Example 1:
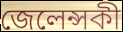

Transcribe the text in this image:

জেলেন্সকী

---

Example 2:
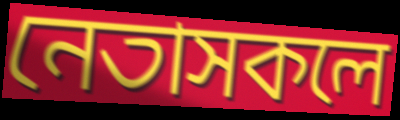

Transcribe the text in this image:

নেতাসকলে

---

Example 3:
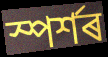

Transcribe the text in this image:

স্পৰ্শৰ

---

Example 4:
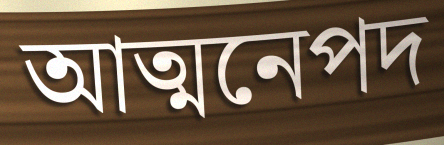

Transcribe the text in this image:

আত্মনেপদ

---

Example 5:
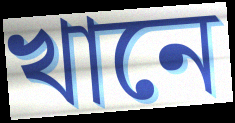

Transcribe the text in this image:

খানে